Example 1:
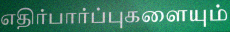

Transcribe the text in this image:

எதிர்பார்ப்புகளையும்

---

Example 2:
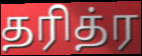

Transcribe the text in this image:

தரித்ர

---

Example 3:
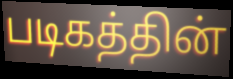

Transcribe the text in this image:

படிகத்தின்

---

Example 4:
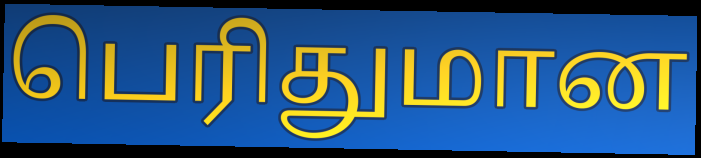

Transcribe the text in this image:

பெரிதுமான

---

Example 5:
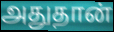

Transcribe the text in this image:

அதுதான்